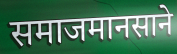
समाजमानसाने